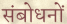
संबोधनों